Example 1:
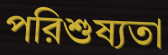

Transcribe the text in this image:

পরিশুষ্যতা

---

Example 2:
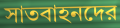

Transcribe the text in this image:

সাতবাহনদের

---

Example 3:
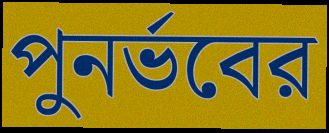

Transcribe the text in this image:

পুনর্ভবের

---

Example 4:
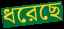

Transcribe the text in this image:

ধরেছে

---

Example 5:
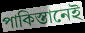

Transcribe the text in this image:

পাকিস্তানেই